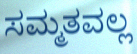
ಸಮ್ಮತವಲ್ಲ